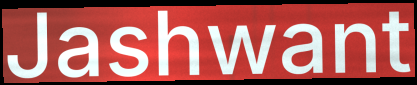
Jashwant